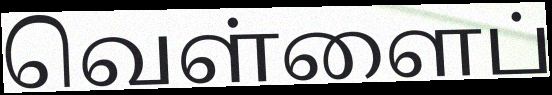
வெள்ளைப்